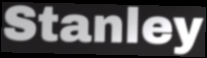
Stanley